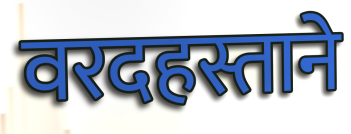
वरदहस्ताने